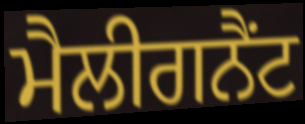
ਮੈਲੀਗਨੈਂਟ